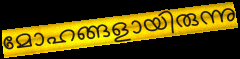
മോഹങ്ങളായിരുന്നു